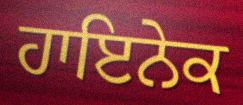
ਹਾਇਨੇਕ